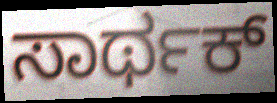
ಸಾರ್ಥಕ್